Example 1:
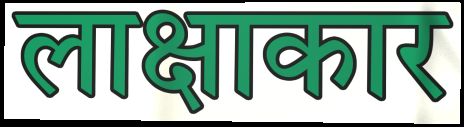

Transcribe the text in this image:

लाक्षाकार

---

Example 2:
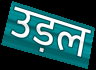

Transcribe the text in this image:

उड़ल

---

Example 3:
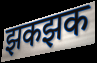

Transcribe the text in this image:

झकझक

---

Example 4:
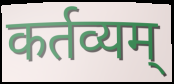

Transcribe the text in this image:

कर्तव्यम्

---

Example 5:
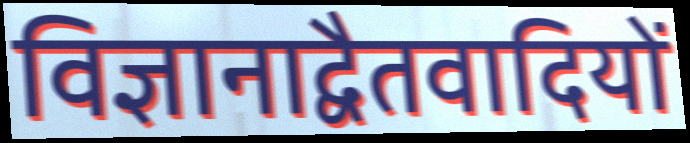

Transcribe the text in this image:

विज्ञानाद्वैतवादियों